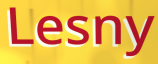
Lesny